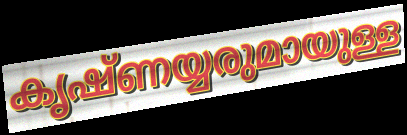
കൃഷ്ണയ്യരുമായുള്ള